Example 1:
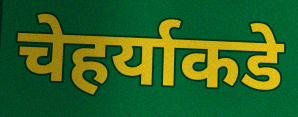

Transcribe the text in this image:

चेहर्याकडे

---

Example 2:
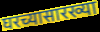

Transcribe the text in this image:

घरच्यासारख्या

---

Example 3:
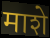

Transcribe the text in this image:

माशे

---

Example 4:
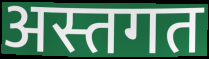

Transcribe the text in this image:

अस्तगत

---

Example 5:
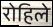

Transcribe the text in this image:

रोहिले